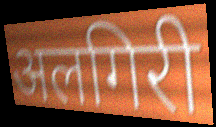
अलगिरी